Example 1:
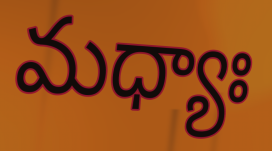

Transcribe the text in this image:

మధ్యాః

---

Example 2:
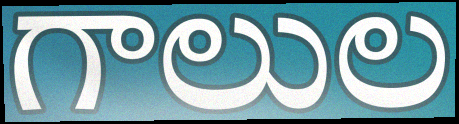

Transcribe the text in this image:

గాలుల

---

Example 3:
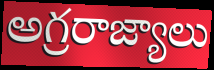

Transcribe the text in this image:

అగ్రరాజ్యాలు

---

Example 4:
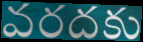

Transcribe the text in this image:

వరదకు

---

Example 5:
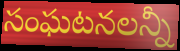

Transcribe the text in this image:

సంఘటనలన్నీ